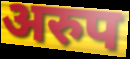
अरुप